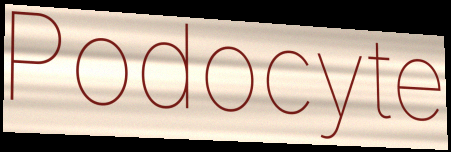
Podocyte